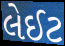
લેઈટ